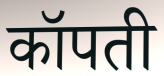
कॉपती